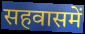
सहवासमें